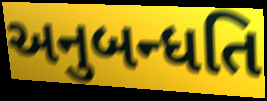
અનુબન્ધતિ